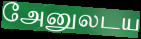
அேனுலடய